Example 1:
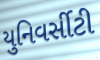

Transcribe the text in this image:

યુનિવર્સીટી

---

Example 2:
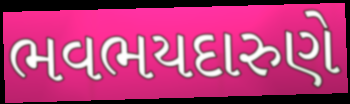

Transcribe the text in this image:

ભવભયદારુણે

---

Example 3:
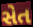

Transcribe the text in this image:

સેત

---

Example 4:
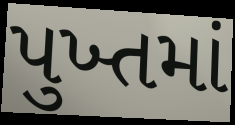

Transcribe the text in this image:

પુખ્તમાં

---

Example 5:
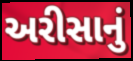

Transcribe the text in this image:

અરીસાનું